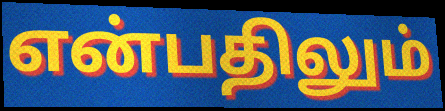
என்பதிலும்